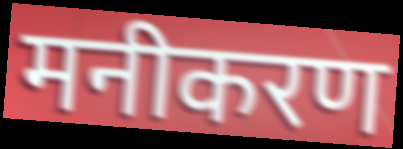
मनीकरण